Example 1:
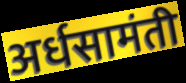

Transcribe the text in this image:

अर्धसामंती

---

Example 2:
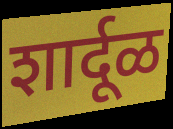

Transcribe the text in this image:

शार्दूळ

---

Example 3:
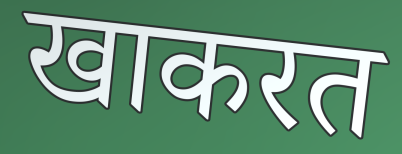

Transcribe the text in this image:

खाकरत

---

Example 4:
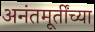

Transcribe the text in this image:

अनंतमूर्तींच्या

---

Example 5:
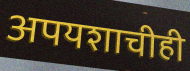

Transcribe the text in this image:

अपयशाचीही